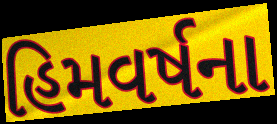
હિમવર્ષના